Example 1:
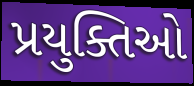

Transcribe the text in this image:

પ્રયુક્તિઓ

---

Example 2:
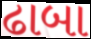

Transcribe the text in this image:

ઢાબા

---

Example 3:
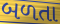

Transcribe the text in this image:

બળતા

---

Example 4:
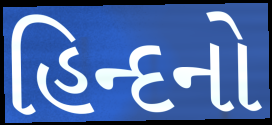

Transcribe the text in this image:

હિન્દનો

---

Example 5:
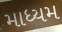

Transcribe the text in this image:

માધ્યમ